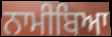
ਨਾਮੀਬਿਆ